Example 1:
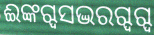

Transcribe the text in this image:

ଈଙ୍କଗ୍ଦସଦ୍ଭରଗ୍ଦଗ୍ଦ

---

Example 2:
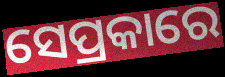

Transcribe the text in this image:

ସେପ୍ରକାରେ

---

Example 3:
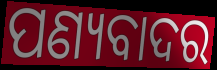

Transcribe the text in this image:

ପଣ୍ୟବାଦର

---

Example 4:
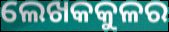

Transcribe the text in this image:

ଲେଖକକୁଳର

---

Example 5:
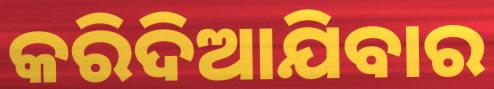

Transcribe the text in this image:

କରିଦିଆଯିବାର